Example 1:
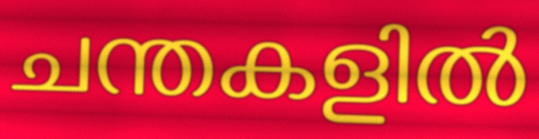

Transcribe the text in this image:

ചന്തകളിൽ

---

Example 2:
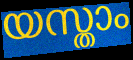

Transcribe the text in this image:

യസ്താം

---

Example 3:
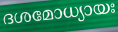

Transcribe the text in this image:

ദശമോധ്യായഃ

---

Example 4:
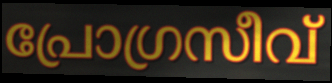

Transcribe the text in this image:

പ്രോഗ്രസീവ്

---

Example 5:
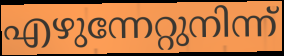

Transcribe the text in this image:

എഴുന്നേറ്റുനിന്ന്